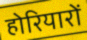
होरियारों